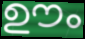
ഊം